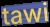
tawi